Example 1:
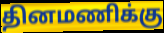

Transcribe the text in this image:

தினமணிக்கு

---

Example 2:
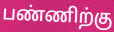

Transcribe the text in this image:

பண்ணிற்கு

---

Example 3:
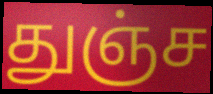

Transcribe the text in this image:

துஞ்ச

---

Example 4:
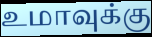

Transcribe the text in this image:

உமாவுக்கு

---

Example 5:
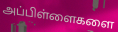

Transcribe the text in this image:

அப்பிள்ளைகளை